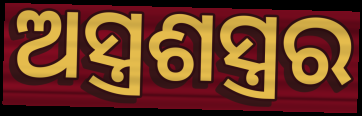
ଅସ୍ତ୍ରଶସ୍ତ୍ରର